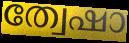
ത്വേഷാ